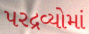
પરદ્રવ્યોમાં